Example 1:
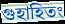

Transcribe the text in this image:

গুহাহিতং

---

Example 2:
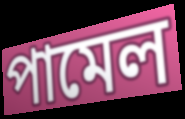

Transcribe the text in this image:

পামেল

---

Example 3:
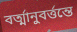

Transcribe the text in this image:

বর্ত্মানুবর্ত্তন্তে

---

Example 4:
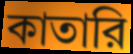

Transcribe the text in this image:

কাতারি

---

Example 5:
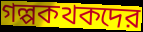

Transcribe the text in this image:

গল্পকথকদের